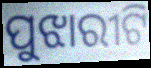
ପୁଝାରୀଟି